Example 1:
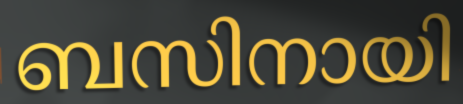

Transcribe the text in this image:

ബസിനായി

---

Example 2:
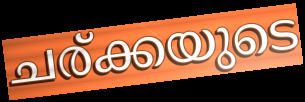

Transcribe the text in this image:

ചര്ക്കയുടെ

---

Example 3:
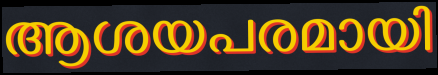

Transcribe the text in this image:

ആശയപരമായി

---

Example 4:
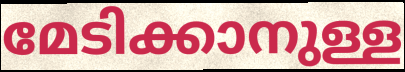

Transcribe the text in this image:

മേടിക്കാനുള്ള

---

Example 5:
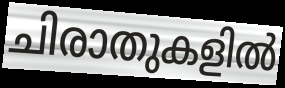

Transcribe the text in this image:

ചിരാതുകളിൽ